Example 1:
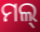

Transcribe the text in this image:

ମଲ୍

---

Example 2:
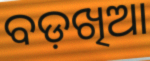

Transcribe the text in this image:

ବଡ଼ଖିଆ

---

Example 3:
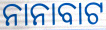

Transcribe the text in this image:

ନାନାବାଟ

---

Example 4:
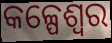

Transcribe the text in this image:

କଳ୍ପେଶ୍ୱର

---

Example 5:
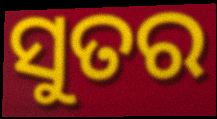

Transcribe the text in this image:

ସୁତର